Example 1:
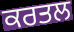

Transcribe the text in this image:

ਕਰਤਲ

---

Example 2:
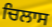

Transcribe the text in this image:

ਚਿਲਾਸ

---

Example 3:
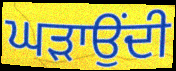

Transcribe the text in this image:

ਘੜਾਉਂਦੀ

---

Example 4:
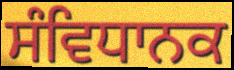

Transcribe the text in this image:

ਸੰਵਿਧਾਨਕ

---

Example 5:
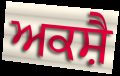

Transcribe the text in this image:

ਅਕਸ਼ੈ